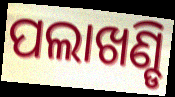
ପଲାଖଣ୍ଡି